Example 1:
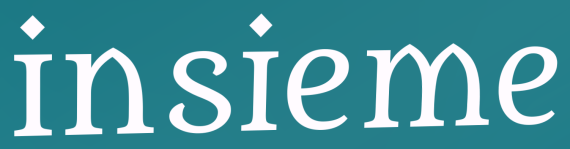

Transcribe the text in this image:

insieme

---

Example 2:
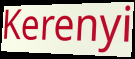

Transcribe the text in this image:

Kerenyi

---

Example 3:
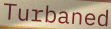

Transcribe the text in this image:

Turbaned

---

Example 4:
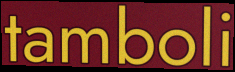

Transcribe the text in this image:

tamboli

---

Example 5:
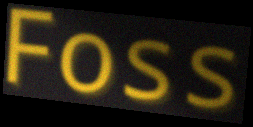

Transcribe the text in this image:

Foss